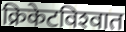
क्रिकेटविश्‍वात